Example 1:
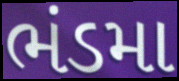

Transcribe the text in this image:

ભંડમા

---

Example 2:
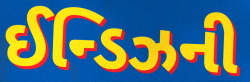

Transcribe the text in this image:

ઈન્ડિઝની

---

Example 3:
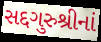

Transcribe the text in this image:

સદ્દગુરુશ્રીનાં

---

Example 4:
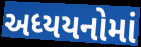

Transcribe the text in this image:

અધ્યયનોમાં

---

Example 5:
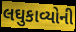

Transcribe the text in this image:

લઘુકાવ્યોની